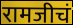
रामजीचं